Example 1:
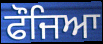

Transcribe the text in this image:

ਫੌਜਿਆ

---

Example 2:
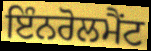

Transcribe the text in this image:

ਇੰਨਰੋਲਮੈਂਟ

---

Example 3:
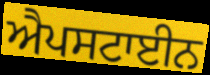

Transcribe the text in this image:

ਐਪਸਟਾਈਨ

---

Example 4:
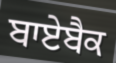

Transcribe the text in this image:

ਬਾਏਬੈਕ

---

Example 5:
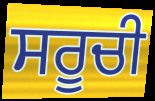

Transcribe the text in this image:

ਸਰੂਚੀ